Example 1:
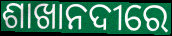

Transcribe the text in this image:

ଶାଖାନଦୀରେ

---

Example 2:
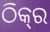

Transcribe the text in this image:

ଠିକ୍‍ର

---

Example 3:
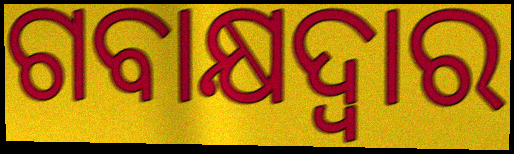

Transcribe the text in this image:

ଗବାକ୍ଷଦ୍ୱାର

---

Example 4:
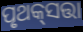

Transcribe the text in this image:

ପୃଥକ୍‌ସତ୍ତା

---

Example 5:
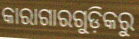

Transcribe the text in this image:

କାରାଗାରଗୁଡ଼ିକରୁ